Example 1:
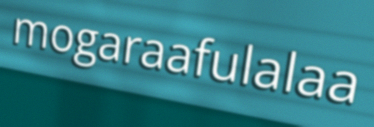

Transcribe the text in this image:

mogaraafulalaa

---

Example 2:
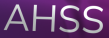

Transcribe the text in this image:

AHSS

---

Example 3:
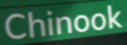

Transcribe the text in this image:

Chinook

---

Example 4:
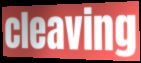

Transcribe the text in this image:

cleaving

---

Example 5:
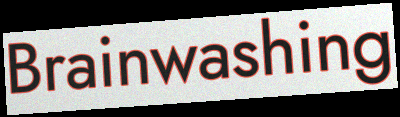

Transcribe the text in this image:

Brainwashing